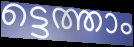
ട്ടെത്താം